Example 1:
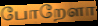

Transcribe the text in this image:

போறேளா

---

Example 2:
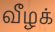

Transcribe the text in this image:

வீழக்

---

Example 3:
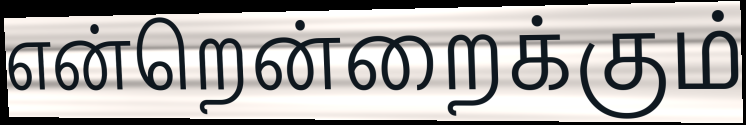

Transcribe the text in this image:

என்றென்றைக்கும்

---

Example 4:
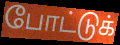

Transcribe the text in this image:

போட்டுக்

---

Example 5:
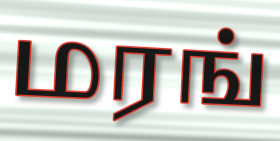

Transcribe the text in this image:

மரங்